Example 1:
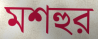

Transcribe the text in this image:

মশহুর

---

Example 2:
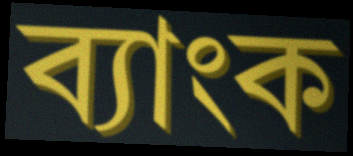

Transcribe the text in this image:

ব্যাংক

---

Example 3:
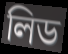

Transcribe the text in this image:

লিড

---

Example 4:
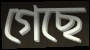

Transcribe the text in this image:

গেছে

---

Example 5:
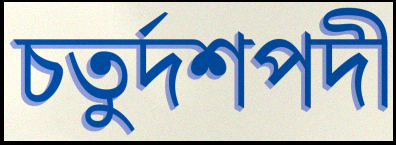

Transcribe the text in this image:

চতুর্দশপদী